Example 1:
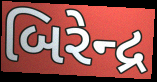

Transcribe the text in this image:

બિરેન્દ્ર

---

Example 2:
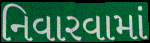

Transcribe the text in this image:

નિવારવામાં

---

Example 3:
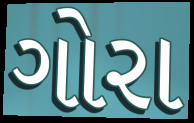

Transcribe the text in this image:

ગોરા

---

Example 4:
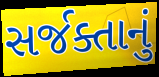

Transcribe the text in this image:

સર્જક્તાનું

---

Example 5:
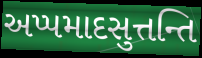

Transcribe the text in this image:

અપ્પમાદસુત્તન્તિ